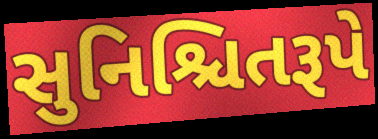
સુનિશ્ચિતરૂપે